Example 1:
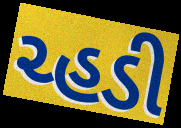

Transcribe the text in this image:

ચ્હડી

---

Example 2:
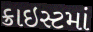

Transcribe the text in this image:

ક્રાઇસ્ટમાં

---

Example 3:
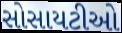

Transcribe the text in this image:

સોસાયટીઓ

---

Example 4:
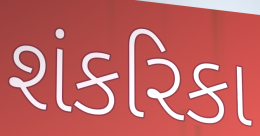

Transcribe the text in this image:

શંકરિકા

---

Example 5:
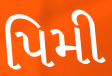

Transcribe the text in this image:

પિમી